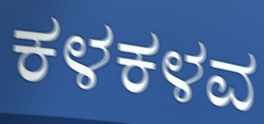
ಕಳಕಳವ